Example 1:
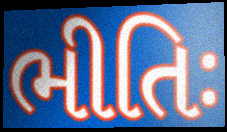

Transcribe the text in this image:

ભીતિઃ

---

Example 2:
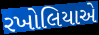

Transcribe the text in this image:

રખોલિયાએ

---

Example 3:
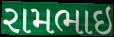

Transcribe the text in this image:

રામભાઇ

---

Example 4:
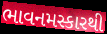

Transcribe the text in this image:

ભાવનમસ્કારથી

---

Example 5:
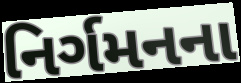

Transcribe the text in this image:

નિર્ગમનના